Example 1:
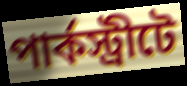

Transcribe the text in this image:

পার্কস্ট্রীটে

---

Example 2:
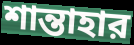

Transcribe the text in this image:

শান্তাহার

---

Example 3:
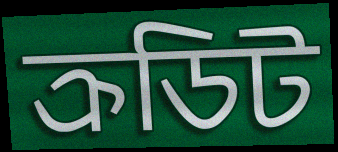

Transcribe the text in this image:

ক্রডিট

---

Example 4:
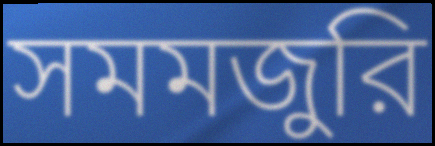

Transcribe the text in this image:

সমমজুরি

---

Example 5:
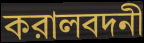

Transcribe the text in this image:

করালবদনী